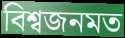
বিশ্বজনমত